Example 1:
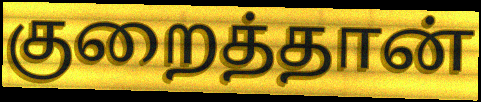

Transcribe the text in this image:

குறைத்தான்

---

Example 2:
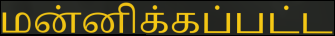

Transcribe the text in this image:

மன்னிக்கப்பட்ட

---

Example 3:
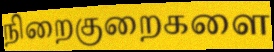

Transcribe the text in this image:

நிறைகுறைகளை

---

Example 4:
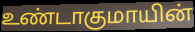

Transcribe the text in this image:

உண்டாகுமாயின்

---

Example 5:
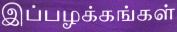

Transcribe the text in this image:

இப்பழக்கங்கள்